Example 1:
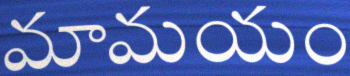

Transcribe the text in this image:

మామయం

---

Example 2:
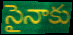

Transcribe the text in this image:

సైనాకు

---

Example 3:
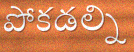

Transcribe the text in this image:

పోకడల్ని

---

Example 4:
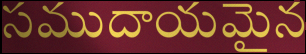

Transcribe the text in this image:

సముదాయమైన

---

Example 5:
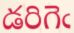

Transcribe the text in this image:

డరిగెఁ